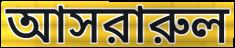
আসরারুল